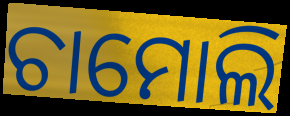
ଚାମୋଲି